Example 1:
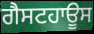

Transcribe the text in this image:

ਗੈਸਟਹਾਊਸ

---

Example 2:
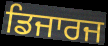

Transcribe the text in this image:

ਡਿਜਾਰਜ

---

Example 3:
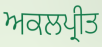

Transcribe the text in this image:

ਅਕਲਪ੍ਰੀਤ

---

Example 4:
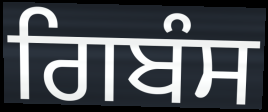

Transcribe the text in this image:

ਗਿਬੰਸ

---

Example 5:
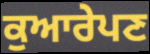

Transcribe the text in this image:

ਕੁਆਰੇਪਣ